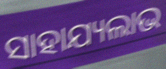
ସାହାଯ୍ୟଲାଭ